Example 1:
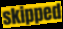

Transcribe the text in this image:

skipped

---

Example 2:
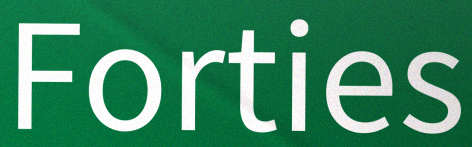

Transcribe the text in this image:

Forties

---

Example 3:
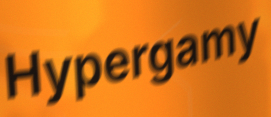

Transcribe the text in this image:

Hypergamy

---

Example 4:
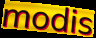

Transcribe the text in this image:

modis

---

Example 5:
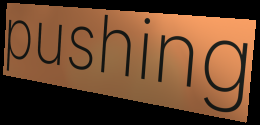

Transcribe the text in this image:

pushing